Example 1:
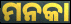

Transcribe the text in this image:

ମନକା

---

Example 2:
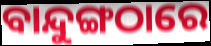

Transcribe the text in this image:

ବାନ୍ଦୁଙ୍ଗଠାରେ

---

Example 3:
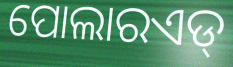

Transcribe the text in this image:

ପୋଲାରଏଡ୍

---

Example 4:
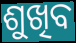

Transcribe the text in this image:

ଶୁଖିବ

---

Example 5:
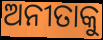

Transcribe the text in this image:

ଅନୀତାକୁ